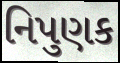
નિપુણક